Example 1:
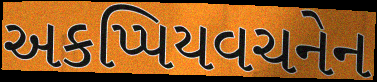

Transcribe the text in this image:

અકપ્પિયવચનેન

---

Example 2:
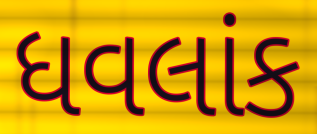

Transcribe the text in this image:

ધવલાંક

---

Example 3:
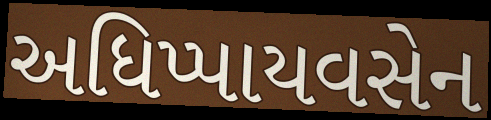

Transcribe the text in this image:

અધિપ્પાયવસેન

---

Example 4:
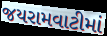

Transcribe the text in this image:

જયરામવાટીમાં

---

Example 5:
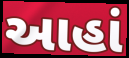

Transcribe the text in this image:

આહાં